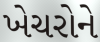
ખેચરોને